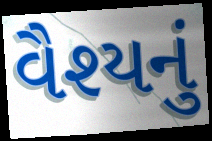
વૈશ્યનું